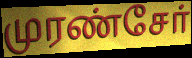
முரண்சேர்